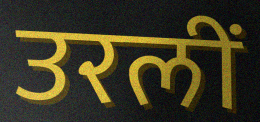
उरलीं